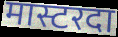
मास्टरदा